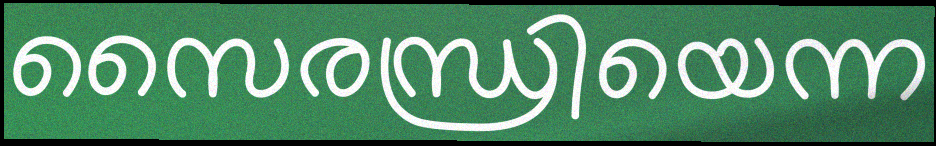
സൈരന്ധ്രിയെന്ന